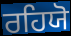
ਰਹਿਯੋ